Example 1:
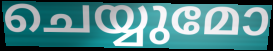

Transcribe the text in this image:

ചെയ്യുമോ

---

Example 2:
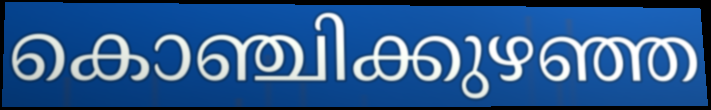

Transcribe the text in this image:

കൊഞ്ചിക്കുഴഞ്ഞ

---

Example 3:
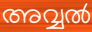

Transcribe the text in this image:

അവ്വൽ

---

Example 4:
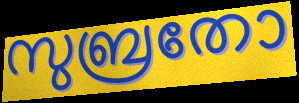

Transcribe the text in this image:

സുബ്രതോ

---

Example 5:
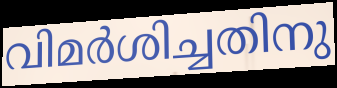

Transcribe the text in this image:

വിമർശിച്ചതിനു